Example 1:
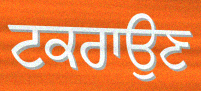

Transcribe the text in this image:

ਟਕਰਾਉਣ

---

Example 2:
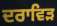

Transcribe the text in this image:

ਦਰਾਵਿੜ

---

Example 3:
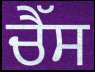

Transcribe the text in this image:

ਚੈੱਸ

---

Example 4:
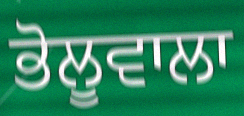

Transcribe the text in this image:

ਭੋਲੂਵਾਲਾ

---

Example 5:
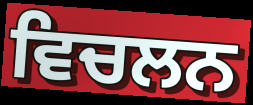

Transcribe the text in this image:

ਵਿਚਲਨ